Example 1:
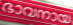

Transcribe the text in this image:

ഭാവനായ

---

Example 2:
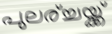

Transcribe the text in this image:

പുലര്ച്ചയ്ക്ക്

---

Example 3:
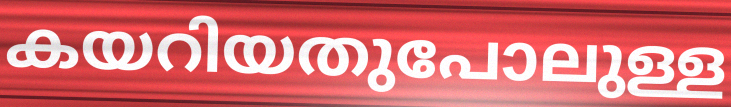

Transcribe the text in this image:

കയറിയതുപോലുള്ള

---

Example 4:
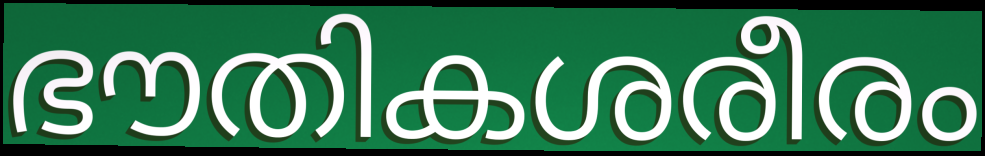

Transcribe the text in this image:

ഭൗതികശരീരം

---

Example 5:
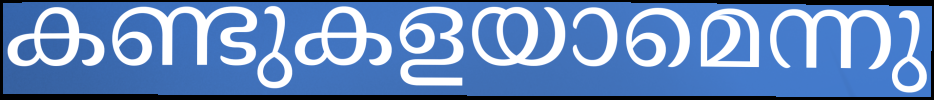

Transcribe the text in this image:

കണ്ടുകളയാമെന്നു